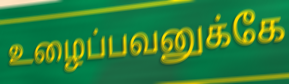
உழைப்பவனுக்கே